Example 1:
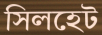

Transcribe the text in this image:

সিলহেট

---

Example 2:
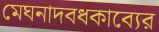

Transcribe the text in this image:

মেঘনাদবধকাব্যের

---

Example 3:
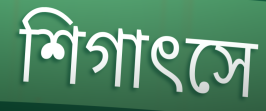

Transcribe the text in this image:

শিগাৎসে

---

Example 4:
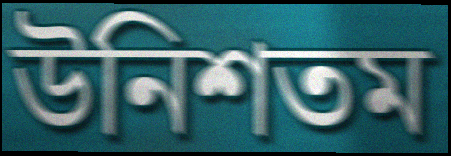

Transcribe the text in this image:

উনিশতম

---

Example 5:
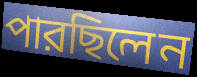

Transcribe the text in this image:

পারছিলেন